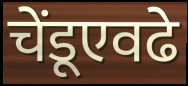
चेंडूएवढे